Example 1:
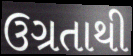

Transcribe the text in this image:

ઉગ્રતાથી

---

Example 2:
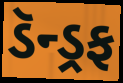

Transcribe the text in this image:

ડૅન્ડ્રફ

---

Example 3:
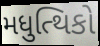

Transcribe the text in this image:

મધુત્થિકો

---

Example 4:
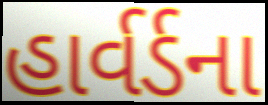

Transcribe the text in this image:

હાર્વર્ડના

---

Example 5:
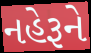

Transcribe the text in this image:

નહેરૂને